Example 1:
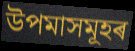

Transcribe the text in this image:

উপমাসমূহৰ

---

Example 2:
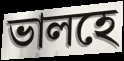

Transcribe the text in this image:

ভালহে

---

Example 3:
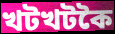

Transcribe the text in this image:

খটখটকৈ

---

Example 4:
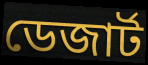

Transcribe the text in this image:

ডেজাৰ্ট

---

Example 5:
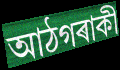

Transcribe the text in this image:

আঠগৰাকী